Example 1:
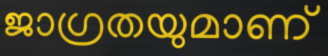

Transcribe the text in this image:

ജാഗ്രതയുമാണ്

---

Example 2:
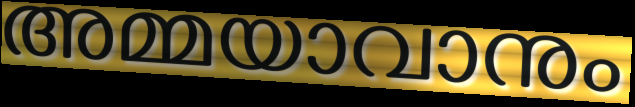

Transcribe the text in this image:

അമ്മയാവാനും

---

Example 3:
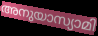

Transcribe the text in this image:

അനുയാസ്യാമി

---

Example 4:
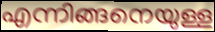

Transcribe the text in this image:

എന്നിങ്ങനെയുള്ള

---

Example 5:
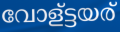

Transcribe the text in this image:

വോള്ട്ടയര്